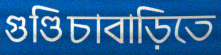
গুণ্ডিচাবাড়িতে